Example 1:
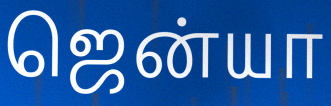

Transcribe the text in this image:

ஜென்யா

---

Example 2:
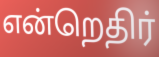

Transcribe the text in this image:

என்றெதிர்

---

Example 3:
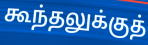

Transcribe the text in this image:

கூந்தலுக்குத்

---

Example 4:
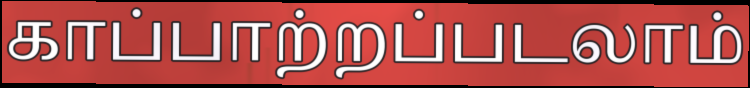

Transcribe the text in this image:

காப்பாற்றப்படலாம்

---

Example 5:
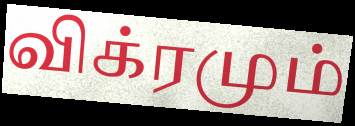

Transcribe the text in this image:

விக்ரமும்